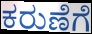
ಕರುಣೆಗೆ